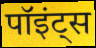
पॉइंट्स